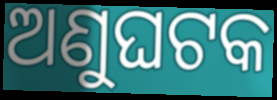
ଅଣୁଘଟକ